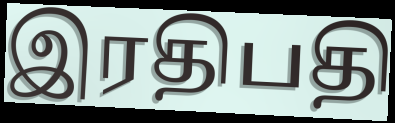
இரதிபதி